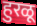
हुरळू